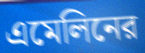
এমেলিনের